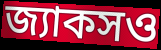
জ্যাকসও